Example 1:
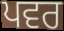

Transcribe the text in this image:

ਪਵਰ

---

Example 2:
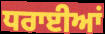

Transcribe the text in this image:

ਧਰਾਈਆਂ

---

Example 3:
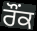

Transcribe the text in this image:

ਰੌਂਕ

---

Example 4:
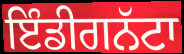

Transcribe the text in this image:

ਇੰਡੀਗਨੱਟਾ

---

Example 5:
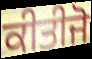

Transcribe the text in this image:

ਕੀਤੀਜੋ